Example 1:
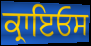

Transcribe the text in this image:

ਕ੍ਰਾਇਓਸ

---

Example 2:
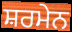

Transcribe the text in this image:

ਸ਼ਰਮੇਨ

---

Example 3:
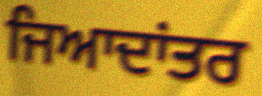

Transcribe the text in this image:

ਜਿਆਦਾਂਤਰ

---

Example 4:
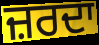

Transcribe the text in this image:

ਜ਼ਰਦਾ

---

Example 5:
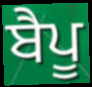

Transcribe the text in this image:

ਬੈਪੂ